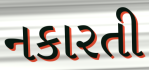
નકારતી